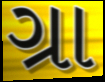
ગ્રા